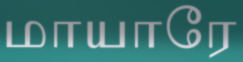
மாயாரே